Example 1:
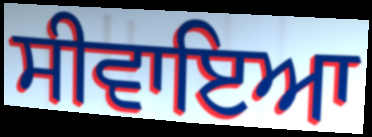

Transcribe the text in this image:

ਸੀਵਾਇਆ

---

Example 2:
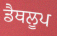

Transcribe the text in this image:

ਡੈਥਲੂਪ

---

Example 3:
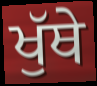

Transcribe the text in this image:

ਖੁੱਥੇ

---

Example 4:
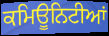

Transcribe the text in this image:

ਕਮਿਊਨਿਟੀਆਂ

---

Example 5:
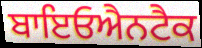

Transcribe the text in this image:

ਬਾਇਓਐਨਟੈਕ